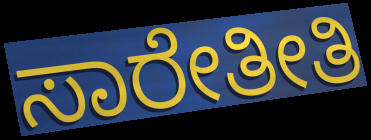
ಸಾರೇತೀತಿ